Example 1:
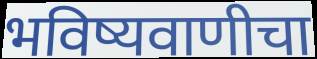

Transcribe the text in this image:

भविष्यवाणीचा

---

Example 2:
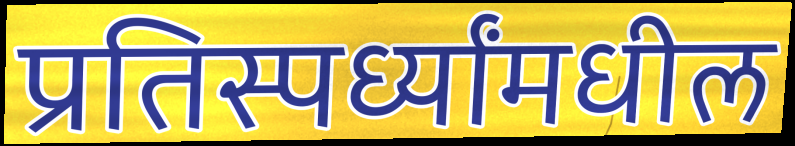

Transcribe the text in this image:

प्रतिस्पर्ध्यांमधील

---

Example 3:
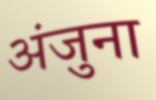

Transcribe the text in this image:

अंजुना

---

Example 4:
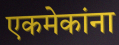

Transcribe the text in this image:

एकमेकांना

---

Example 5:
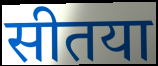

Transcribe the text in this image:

सीतया